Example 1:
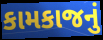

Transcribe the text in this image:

કામકાજનું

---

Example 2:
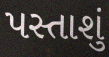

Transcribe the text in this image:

પસ્તાશું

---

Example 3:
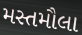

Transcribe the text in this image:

મસ્તમૌલા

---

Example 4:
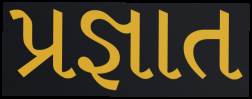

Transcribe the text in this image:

પ્રજ્ઞાત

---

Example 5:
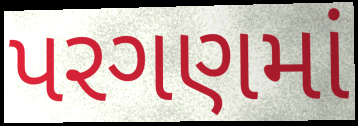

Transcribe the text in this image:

પરગણમાં